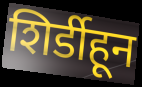
शिर्डीहून